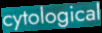
cytological